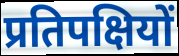
प्रतिपक्षियों